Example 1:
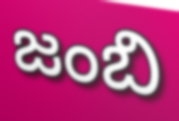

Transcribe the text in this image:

జంబి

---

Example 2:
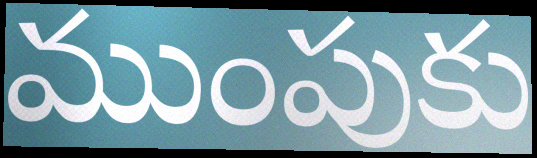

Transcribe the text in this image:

ముంపుకు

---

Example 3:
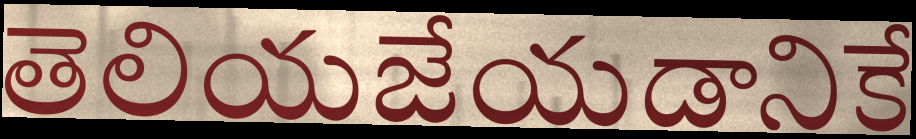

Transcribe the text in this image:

తెలియజేయడానికే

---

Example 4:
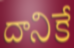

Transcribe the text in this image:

దానికే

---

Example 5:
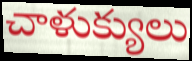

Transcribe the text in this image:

చాళుక్యులు